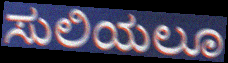
ಸುಲಿಯಲೂ